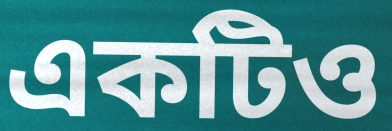
একটিও